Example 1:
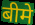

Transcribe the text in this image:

बीमे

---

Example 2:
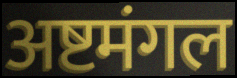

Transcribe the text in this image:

अष्टमंगल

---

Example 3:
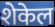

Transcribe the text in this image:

शेकेल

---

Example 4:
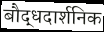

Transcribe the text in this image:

बौद्धदार्शनिक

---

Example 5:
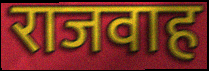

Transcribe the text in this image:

राजवाह